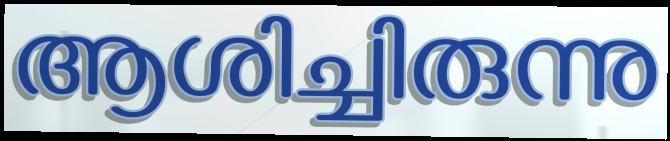
ആശിച്ചിരുന്നു